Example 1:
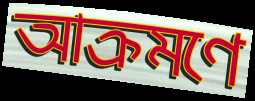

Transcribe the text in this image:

আক্ৰমণে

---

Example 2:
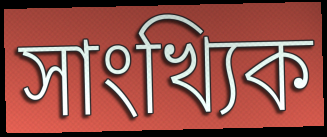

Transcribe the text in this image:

সাংখ্যিক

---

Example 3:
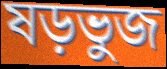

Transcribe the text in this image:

ষড়ভুজ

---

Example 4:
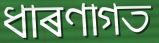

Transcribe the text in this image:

ধাৰণাগত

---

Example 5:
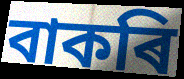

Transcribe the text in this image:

বাকৰি